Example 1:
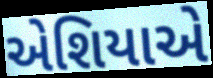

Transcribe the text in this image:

એશિયાએ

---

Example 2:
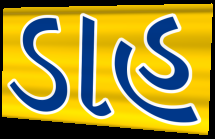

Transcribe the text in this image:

ડાહ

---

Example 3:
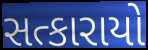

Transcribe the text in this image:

સત્કારાયો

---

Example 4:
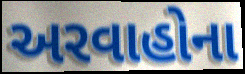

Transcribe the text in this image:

અરવાહોના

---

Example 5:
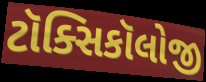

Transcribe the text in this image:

ટૉક્સિકૉલોજી